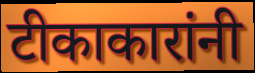
टीकाकारांनी